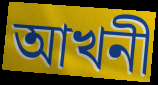
আখনী